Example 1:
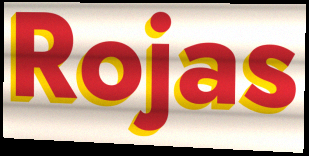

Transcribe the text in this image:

Rojas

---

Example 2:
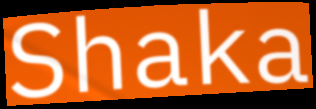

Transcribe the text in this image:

Shaka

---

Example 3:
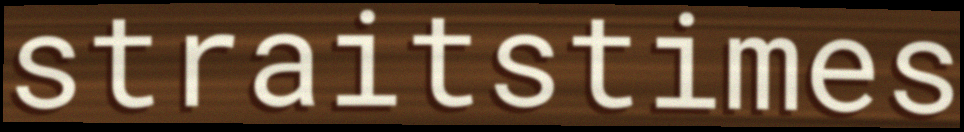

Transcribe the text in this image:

straitstimes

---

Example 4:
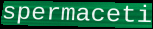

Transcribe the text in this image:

spermaceti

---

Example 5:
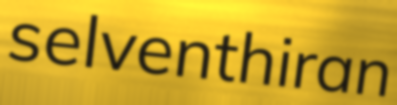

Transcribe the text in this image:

selventhiran